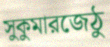
সুকুমারজেঠু